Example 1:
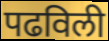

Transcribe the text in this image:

पढविली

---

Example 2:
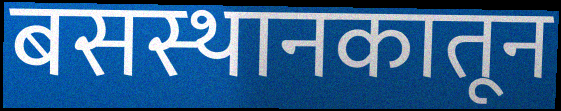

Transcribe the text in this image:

बसस्थानकातून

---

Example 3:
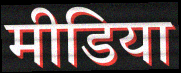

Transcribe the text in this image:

मीडिया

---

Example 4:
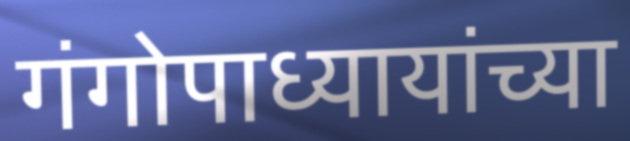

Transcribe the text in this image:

गंगोपाध्यायांच्या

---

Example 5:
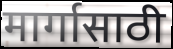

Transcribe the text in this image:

मार्गासाठी